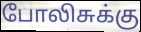
போலிசுக்கு